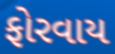
ફોરવાય